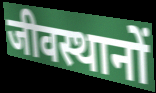
जीवस्थानों